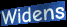
Widens